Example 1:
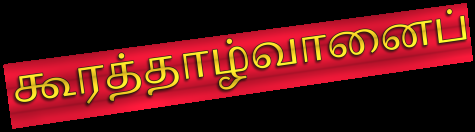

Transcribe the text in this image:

கூரத்தாழ்வானைப்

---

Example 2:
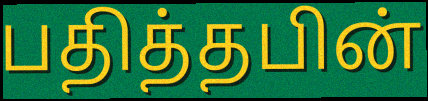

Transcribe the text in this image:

பதித்தபின்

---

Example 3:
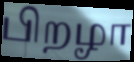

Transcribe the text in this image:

பிறழா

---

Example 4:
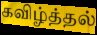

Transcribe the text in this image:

கவிழ்த்தல்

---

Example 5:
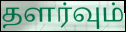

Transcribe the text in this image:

தளர்வும்